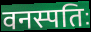
वनस्पतिः